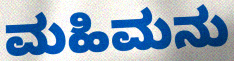
ಮಹಿಮನು